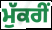
ਮੁੱਕਰੀਂ